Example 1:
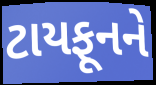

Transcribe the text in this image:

ટાયફૂનને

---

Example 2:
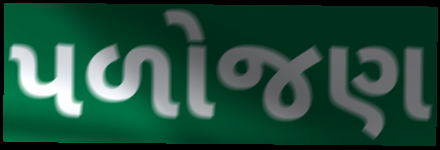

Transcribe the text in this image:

પળોજણ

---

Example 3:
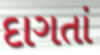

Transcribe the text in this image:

દાગતાં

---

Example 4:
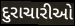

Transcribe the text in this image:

દુરાચારીઓ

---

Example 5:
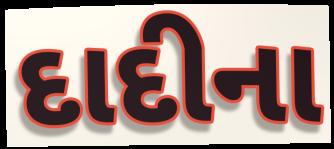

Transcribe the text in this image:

દાદીના